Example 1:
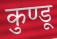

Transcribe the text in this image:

कुण्डू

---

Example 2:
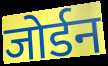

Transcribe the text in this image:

जोर्डन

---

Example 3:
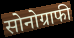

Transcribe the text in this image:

सोनोग्राफी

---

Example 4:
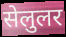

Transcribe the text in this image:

सेलुलर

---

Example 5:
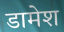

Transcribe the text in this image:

डामेश